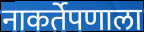
नाकर्तेपणाला